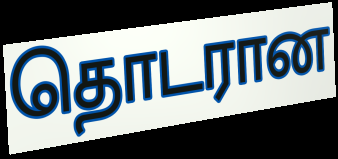
தொடரான